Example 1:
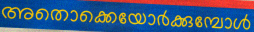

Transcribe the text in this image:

അതൊക്കെയോർക്കുമ്പോൾ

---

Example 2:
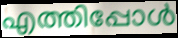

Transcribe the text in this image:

എത്തിപ്പോൾ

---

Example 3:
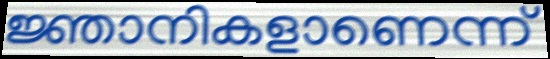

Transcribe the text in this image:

ജ്ഞാനികളാണെന്ന്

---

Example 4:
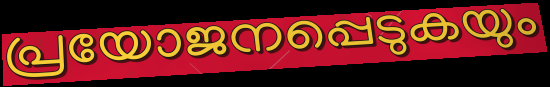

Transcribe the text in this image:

പ്രയോജനപ്പെടുകയും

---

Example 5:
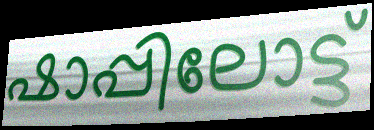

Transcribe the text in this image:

ഷാപ്പിലോട്ട്